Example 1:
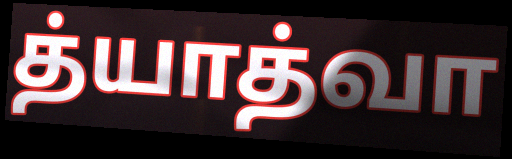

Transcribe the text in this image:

த்யாத்வா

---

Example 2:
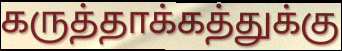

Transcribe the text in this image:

கருத்தாக்கத்துக்கு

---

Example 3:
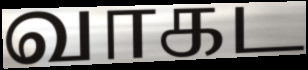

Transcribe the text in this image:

வாகட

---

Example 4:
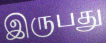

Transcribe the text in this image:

இருபது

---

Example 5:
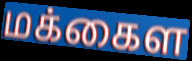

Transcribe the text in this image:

மக்கைள